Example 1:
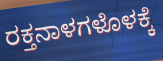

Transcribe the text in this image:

ರಕ್ತನಾಳಗಳೊಳಕ್ಕೆ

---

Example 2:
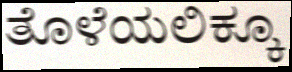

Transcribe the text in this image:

ತೊಳೆಯಲಿಕ್ಕೂ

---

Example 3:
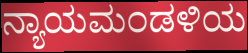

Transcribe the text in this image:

ನ್ಯಾಯಮಂಡಳಿಯ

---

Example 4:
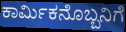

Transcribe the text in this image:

ಕಾರ್ಮಿಕನೊಬ್ಬನಿಗೆ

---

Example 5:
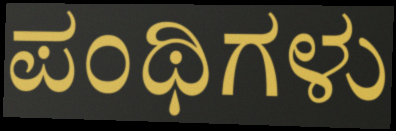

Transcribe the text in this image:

ಪಂಥಿಗಳು